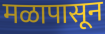
मळापासून